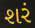
શરં